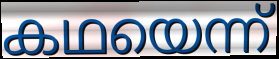
കഥയെന്ന്